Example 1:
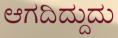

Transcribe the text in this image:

ಆಗದಿದ್ದುದು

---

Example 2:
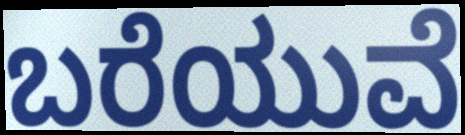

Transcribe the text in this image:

ಬರೆಯುವೆ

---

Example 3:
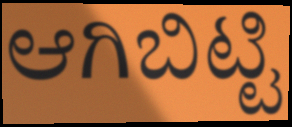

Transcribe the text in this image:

ಆಗಿಬಿಟ್ಟಿ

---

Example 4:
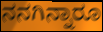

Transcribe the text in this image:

ನನಗಿನ್ನಾರೂ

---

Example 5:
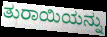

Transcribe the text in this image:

ತುರಾಯಿಯನ್ನು